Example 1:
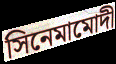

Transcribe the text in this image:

সিনেমামোদী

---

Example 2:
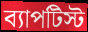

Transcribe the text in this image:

ব্যাপটিস্ট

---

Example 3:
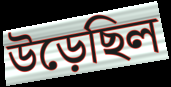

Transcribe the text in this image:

উড়েছিল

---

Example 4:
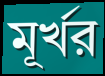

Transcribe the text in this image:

মূর্খর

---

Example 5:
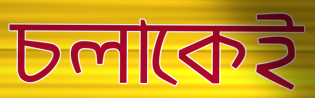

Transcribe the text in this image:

চলাকেই